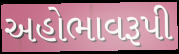
અહોભાવરૂપી